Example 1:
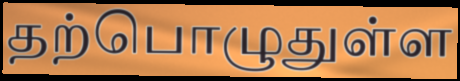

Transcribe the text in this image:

தற்பொழுதுள்ள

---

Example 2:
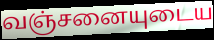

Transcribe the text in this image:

வஞ்சனையுடைய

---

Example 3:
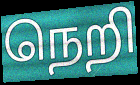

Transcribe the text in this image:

நெறி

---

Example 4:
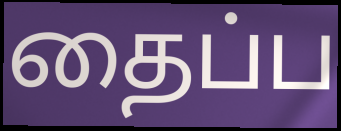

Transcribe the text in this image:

தைப்ப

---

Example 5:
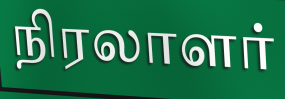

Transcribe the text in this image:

நிரலாளர்